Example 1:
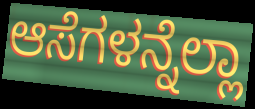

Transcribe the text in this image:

ಆಸೆಗಳನ್ನೆಲ್ಲಾ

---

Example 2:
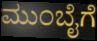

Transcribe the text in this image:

ಮುಂಬೈಗೆ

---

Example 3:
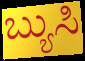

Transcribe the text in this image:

ಬ್ಯುಸಿ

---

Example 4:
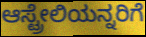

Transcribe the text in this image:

ಆಸ್ಟ್ರೇಲಿಯನ್ನರಿಗೆ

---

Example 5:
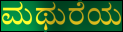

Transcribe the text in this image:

ಮಥುರೆಯ